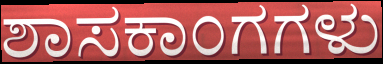
ಶಾಸಕಾಂಗಗಳು